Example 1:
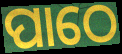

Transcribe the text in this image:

ପାଠେ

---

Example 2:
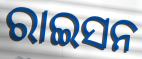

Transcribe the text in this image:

ରାଇସନ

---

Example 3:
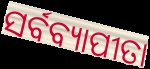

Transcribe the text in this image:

ସର୍ବବ୍ୟାପୀତା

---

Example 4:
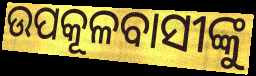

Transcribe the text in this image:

ଉପକୂଳବାସୀଙ୍କୁ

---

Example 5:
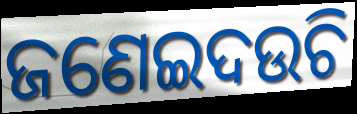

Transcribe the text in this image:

ଜଣେଇଦଉଚି